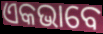
ଏକଭାବେ